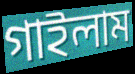
গাইলাম